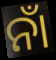
ନାଁ